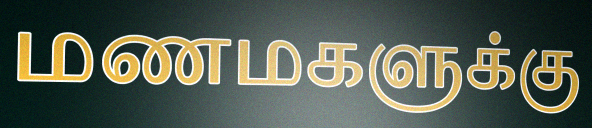
மணமகளுக்கு